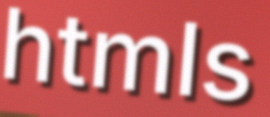
htmls